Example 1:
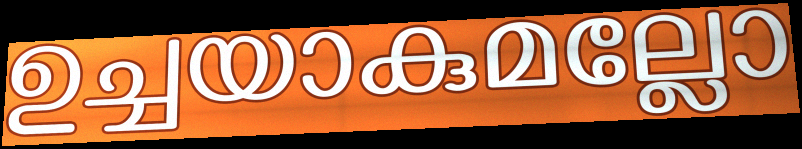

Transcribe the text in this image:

ഉച്ചയാകുമല്ലോ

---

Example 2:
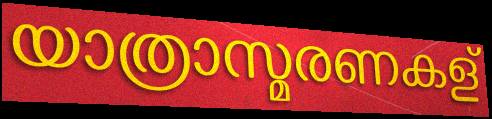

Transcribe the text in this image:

യാത്രാസ്മരണകള്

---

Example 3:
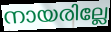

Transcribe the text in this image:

നായരില്ലേ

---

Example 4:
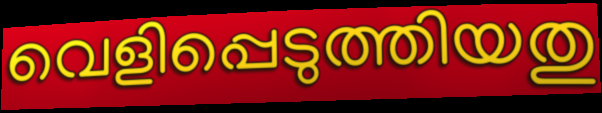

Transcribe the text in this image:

വെളിപ്പെടുത്തിയതു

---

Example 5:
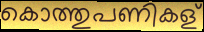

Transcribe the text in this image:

കൊത്തുപണികള്